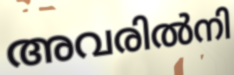
അവരിൽനി